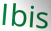
Ibis